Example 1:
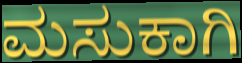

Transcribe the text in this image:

ಮಸುಕಾಗಿ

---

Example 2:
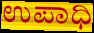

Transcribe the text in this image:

ಉಪಾಧಿ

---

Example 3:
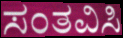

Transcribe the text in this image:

ಸಂತವಿಸಿ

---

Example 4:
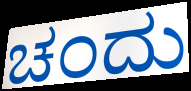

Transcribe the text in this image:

ಚಂದು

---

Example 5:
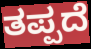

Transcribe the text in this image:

ತಪ್ಪದೆ